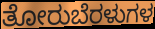
ತೋರುಬೆರಳುಗಳ